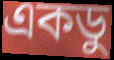
একডু